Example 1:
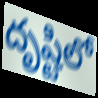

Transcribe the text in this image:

దృష్టిలో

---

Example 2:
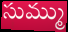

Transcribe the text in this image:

సుమ్ము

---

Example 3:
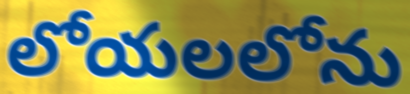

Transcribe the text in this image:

లోయలలోను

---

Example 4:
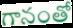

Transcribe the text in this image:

గానంతో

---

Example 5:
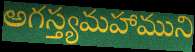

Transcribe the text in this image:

అగస్త్యమహాముని